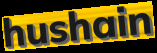
hushain